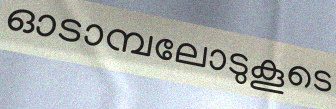
ഓടാമ്പലോടുകൂടെ